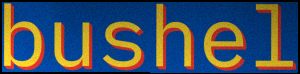
bushel